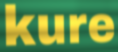
kure